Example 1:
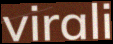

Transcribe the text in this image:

virali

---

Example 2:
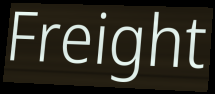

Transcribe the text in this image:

Freight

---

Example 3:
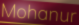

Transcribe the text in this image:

Mohanur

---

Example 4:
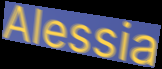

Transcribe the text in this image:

Alessia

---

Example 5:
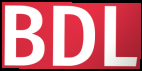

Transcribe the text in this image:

BDL